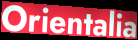
Orientalia